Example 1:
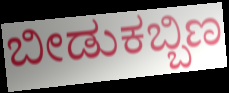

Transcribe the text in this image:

ಬೀಡುಕಬ್ಬಿಣ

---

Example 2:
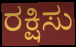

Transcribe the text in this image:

ರಕ್ಷಿಸು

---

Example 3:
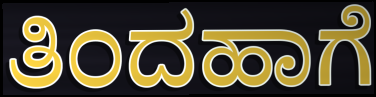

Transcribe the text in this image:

ತಿಂದಹಾಗೆ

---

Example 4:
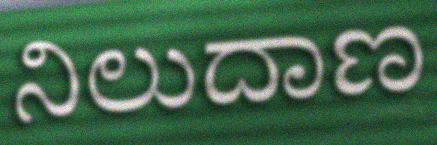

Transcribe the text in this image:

ನಿಲುದಾಣ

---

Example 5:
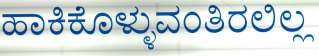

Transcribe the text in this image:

ಹಾಕಿಕೊಳ್ಳುವಂತಿರಲಿಲ್ಲ